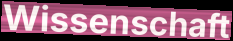
Wissenschaft